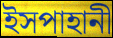
ইসপাহানী